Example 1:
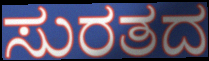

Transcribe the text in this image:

ಸುರತದ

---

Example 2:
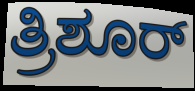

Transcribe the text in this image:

ತ್ರಿಶೂರ್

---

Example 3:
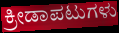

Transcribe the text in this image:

ಕ್ರೀಡಾಪಟುಗಳು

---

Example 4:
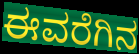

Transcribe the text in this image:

ಈವರೆಗಿನ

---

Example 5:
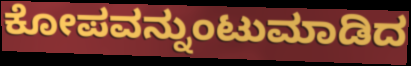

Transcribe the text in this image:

ಕೋಪವನ್ನುಂಟುಮಾಡಿದ